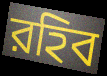
রহিব